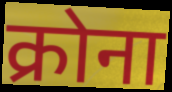
क्रोना